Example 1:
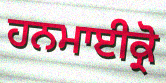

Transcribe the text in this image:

ਹਨਮਾਈਕ੍ਰੋ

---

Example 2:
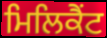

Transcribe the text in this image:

ਮਿਲਿਕੈਂਟ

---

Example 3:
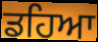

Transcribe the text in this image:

ਡਹਿਆ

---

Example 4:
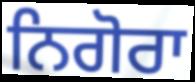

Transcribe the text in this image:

ਨਿਗੋਰਾ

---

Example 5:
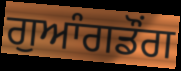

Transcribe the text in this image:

ਗੁਆੰਗਡੌਂਗ